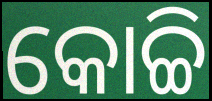
କୋଚ୍ଚି